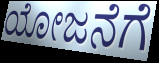
ಯೋಜನೆಗೆ